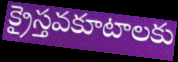
క్రైస్తవకూటాలకు